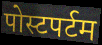
पोस्टपर्टम